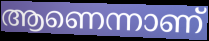
ആണെന്നാണ്